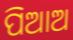
ପିଆଅ